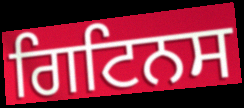
ਗਿਟਿਨਸ